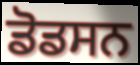
ਡੋਡਸਨ